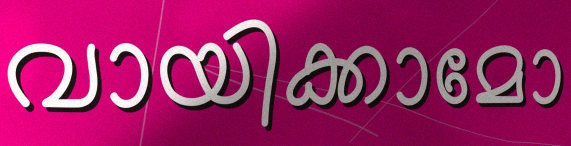
വായിക്കാമോ